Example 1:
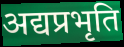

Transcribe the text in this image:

अद्यप्रभृति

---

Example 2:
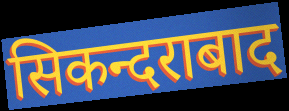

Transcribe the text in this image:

सिकन्दराबाद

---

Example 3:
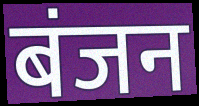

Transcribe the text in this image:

बंजन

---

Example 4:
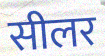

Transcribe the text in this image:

सीलर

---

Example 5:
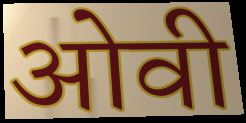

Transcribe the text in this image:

ओवी